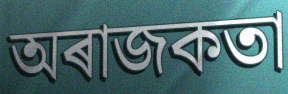
অৰাজকতা